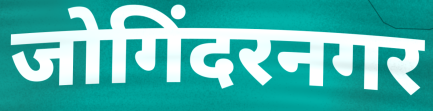
जोगिंदरनगर